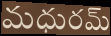
మధురమ్